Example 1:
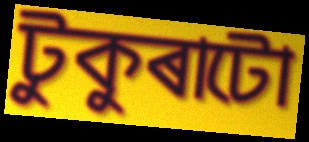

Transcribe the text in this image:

টুকুৰাটো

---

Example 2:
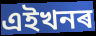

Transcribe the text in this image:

এইখনৰ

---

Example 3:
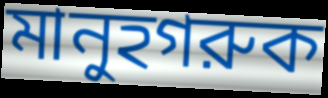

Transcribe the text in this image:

মানুহগৰুক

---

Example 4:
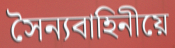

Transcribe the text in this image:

সৈন্যবাহিনীয়ে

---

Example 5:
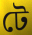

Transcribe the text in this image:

টে